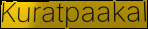
Kuratpaakal